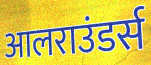
आलराउंडर्स